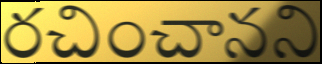
రచించానని